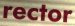
rector